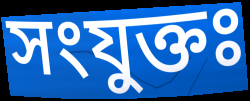
সংযুক্তঃ